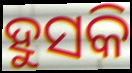
ହୁସକି